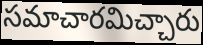
సమాచారమిచ్చారు